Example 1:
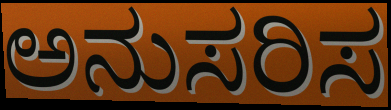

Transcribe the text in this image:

ಅನುಸರಿಸ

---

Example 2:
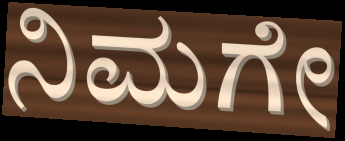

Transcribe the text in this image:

ನಿಮಗೇ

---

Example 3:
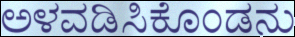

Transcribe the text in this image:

ಅಳವಡಿಸಿಕೊಂಡನು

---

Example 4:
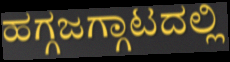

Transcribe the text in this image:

ಹಗ್ಗಜಗ್ಗಾಟದಲ್ಲಿ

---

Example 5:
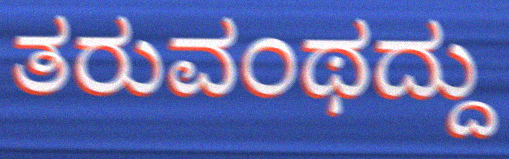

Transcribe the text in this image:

ತರುವಂಥದ್ದು